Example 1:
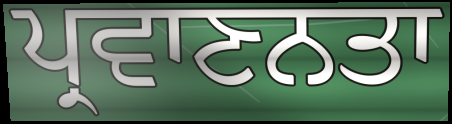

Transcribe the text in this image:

ਪ੍ਰਵਾਣਨਤਾ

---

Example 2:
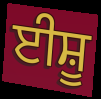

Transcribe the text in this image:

ਈਸ਼ੂ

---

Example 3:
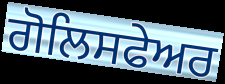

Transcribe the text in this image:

ਗੋਲਿਸਫੇਅਰ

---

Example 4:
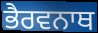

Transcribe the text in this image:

ਭੈਰਵਨਾਥ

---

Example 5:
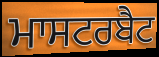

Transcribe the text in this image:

ਮਾਸਟਰਬੈਟ